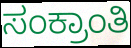
ಸಂಕ್ರಾಂತಿ